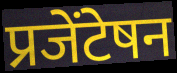
प्रजेंटेषन